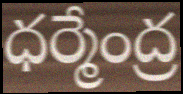
ధర్మేంద్ర